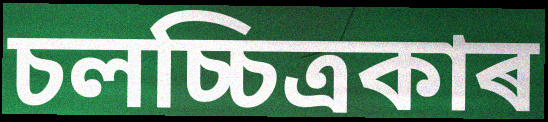
চলচ্চিত্ৰকাৰ